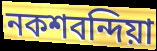
নকশবন্দিয়া